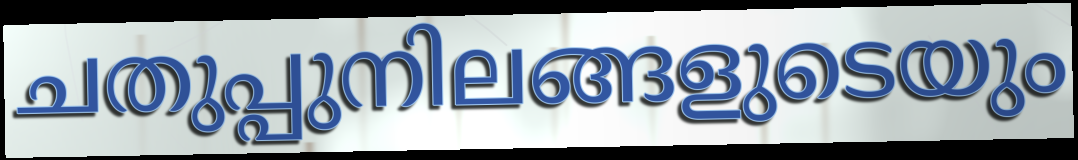
ചതുപ്പുനിലങ്ങളുടെയും